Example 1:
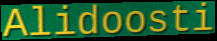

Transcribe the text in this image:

Alidoosti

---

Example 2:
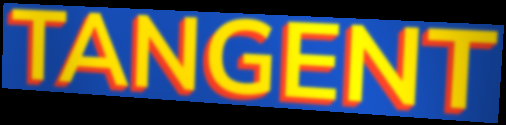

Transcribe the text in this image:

TANGENT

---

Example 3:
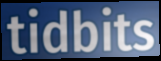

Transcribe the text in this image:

tidbits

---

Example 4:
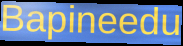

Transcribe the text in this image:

Bapineedu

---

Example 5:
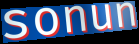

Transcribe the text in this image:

sonun